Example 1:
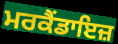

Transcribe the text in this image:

ਮਰਕੈਂਡਾਇਜ਼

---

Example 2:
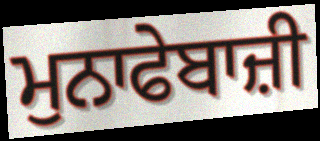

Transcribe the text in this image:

ਮੁਨਾਫੇਬਾਜ਼ੀ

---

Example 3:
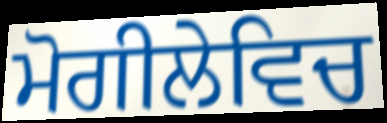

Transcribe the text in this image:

ਮੋਗੀਲੇਵਿਚ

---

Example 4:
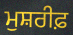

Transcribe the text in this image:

ਮੁਸ਼ਰੀਫ਼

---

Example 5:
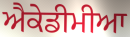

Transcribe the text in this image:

ਐਕੇਡੀਮੀਆ